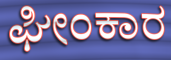
ಘೀಂಕಾರ